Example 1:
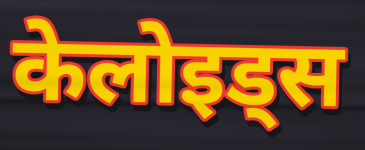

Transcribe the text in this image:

केलोइड्स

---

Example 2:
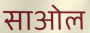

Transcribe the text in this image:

साओल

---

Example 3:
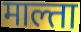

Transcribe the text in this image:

माल्ता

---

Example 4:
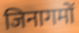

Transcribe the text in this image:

जिनागमों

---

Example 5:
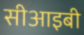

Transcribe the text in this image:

सीआइबी